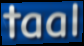
taal